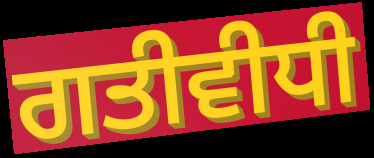
ਗਤੀਵੀਧੀ